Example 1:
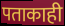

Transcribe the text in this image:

पताकाही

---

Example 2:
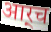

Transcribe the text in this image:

आर्च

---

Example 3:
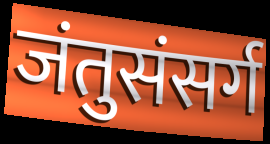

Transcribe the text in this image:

जंतुसंसर्ग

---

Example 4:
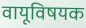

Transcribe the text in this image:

वायूविषयक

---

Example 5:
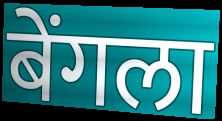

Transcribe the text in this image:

बेंगला